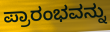
ಪ್ರಾರಂಭವನ್ನು